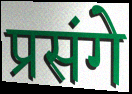
प्रसंगे